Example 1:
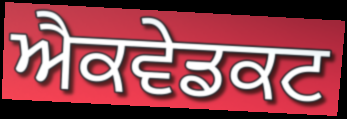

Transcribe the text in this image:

ਐਕਵੇਡਕਟ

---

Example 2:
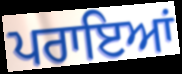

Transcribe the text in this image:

ਪਰਾਇਆਂ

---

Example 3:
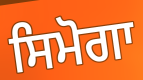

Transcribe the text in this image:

ਸਿਮੋਗਾ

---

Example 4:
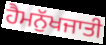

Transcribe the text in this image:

ਹੈਮਨੁੱਖਜਾਤੀ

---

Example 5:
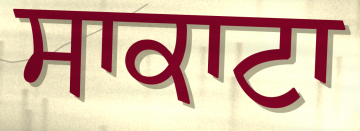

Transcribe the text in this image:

ਸਾਕਾਟਾ